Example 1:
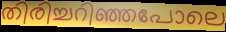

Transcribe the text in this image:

തിരിച്ചറിഞ്ഞപോലെ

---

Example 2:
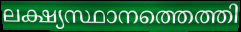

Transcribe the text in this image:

ലക്ഷ്യസ്ഥാനത്തെത്തി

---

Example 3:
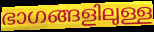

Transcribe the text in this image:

ഭാഗങ്ങളിലുള്ള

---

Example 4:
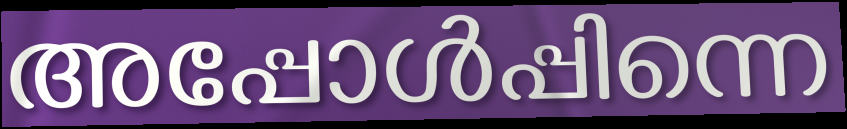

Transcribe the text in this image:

അപ്പോൾപ്പിന്നെ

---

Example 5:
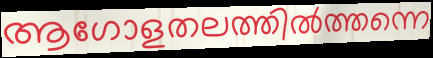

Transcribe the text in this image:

ആഗോളതലത്തിൽത്തന്നെ